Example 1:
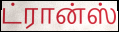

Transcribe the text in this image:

ட்ரான்ஸ்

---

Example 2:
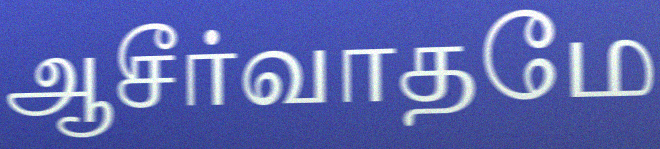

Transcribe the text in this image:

ஆசீர்வாதமே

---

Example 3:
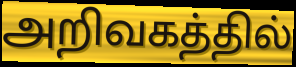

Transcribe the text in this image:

அறிவகத்தில்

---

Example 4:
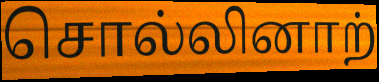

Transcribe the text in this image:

சொல்லினாற்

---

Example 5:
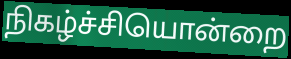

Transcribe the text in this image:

நிகழ்ச்சியொன்றை